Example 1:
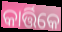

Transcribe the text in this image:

କାର୍ତ୍ତିକେ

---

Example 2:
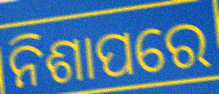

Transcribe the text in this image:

ନିଶାପରେ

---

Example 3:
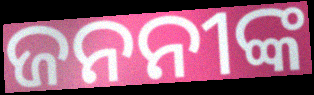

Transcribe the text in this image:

ଜନନୀଙ୍କ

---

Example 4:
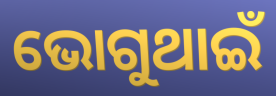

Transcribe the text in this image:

ଭୋଗୁଥାଇଁ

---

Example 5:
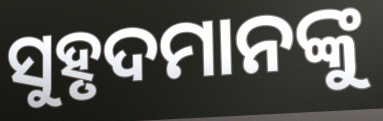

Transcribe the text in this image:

ସୁହୃଦମାନଙ୍କୁ